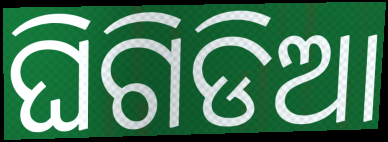
ଘିଗିଡିଆ